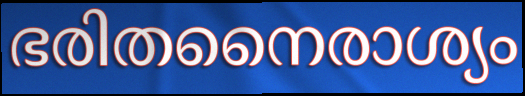
ഭരിതനൈരാശ്യം